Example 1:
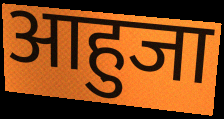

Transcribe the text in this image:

आहुजा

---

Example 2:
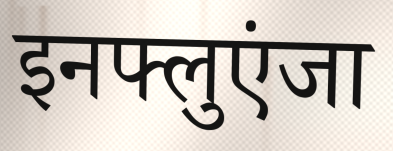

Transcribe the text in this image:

इनफ्लुएंजा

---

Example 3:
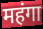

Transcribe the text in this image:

महंगा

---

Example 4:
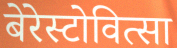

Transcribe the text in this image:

बेरेस्टोवित्सा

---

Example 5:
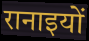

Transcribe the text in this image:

रानाइयों